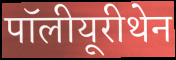
पॉलीयूरीथेन